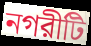
নগরীটি